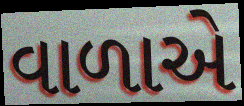
વાળાએ